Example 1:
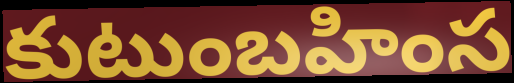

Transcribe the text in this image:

కుటుంబహింస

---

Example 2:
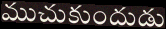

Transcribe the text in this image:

ముచుకుందుడు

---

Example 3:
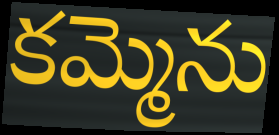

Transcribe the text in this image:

కమ్మెను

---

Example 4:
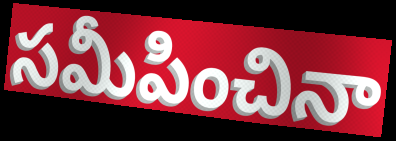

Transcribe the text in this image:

సమీపించినా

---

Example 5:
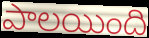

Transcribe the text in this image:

పాలయింది